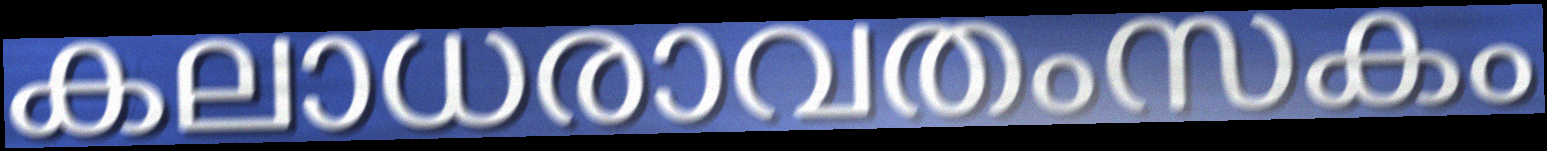
കലാധരാവതംസകം